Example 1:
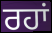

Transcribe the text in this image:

ਰਹਾਂ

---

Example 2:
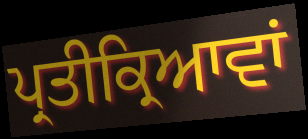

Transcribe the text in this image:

ਪ੍ਰਤੀਕ੍ਰਿਆਵਾਂ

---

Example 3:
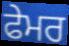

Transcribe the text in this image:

ਫੇਮਰ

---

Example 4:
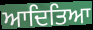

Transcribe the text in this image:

ਆਦਿਤਿਆ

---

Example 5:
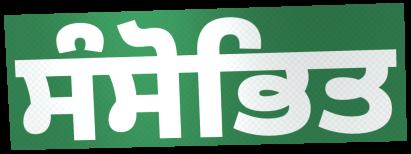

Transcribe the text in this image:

ਸੰਸੋਭਿਤ